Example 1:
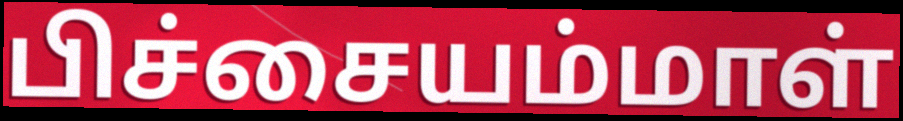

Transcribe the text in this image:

பிச்சையம்மாள்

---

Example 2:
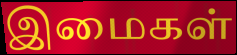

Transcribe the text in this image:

இமைகள்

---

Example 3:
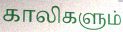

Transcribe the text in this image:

காலிகளும்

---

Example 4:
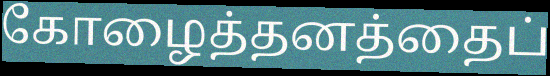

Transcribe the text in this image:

கோழைத்தனத்தைப்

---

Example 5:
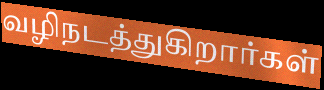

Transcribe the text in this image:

வழிநடத்துகிறார்கள்